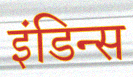
इंडिन्स